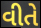
વીતે